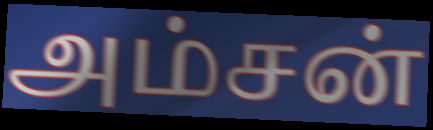
அம்சன்